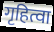
गृहित्वा